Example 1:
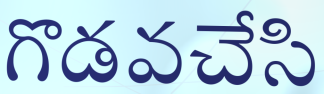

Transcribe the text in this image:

గొడవచేసి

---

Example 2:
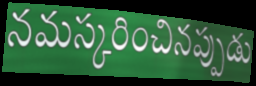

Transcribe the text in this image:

నమస్కరించినప్పుడు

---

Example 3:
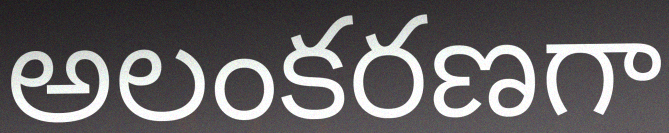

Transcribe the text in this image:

అలంకరణగా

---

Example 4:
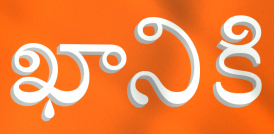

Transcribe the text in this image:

ఖానికి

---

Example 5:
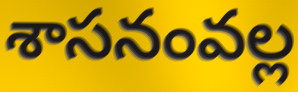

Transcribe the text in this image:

శాసనంవల్ల